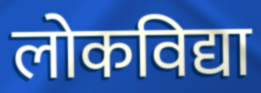
लोकविद्या